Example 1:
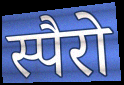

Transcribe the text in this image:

स्पैरो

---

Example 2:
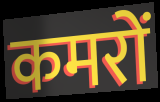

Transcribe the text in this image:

कमरों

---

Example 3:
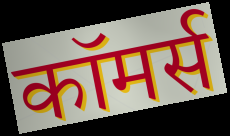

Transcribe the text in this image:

कॉमर्स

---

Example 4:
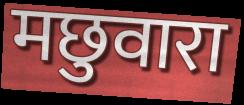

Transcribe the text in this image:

मछुवारा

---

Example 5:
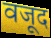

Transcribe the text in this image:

वजूद